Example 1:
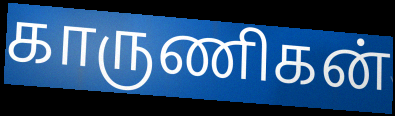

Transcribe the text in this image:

காருணிகன்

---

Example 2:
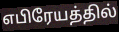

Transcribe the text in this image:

எபிரேயத்தில்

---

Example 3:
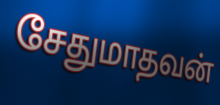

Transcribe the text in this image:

சேதுமாதவன்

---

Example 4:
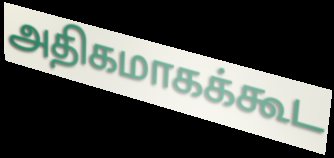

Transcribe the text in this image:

அதிகமாகக்கூட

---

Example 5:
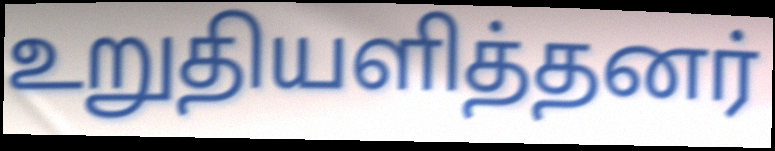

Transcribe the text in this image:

உறுதியளித்தனர்